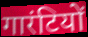
गारंटियों